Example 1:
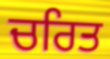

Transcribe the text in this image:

ਚਰਿਤ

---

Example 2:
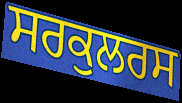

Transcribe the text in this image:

ਸਰਕੁਲਰਸ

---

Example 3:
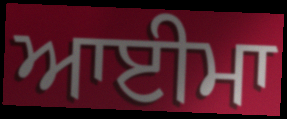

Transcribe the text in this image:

ਆਈਮਾ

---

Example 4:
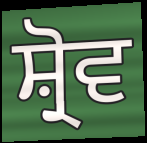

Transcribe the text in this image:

ਸ਼੍ਰੋਵ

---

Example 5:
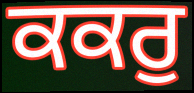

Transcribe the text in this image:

ਕਕਰੁ